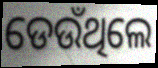
ଡେଉଁଥିଲେ